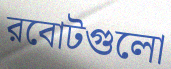
রবোটগুলো